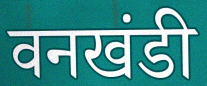
वनखंडी